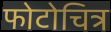
फोटोचित्र